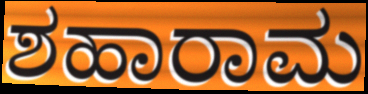
ಶಹಾರಾಮ